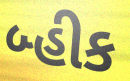
બ્હીક